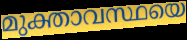
മുക്താവസ്ഥയെ